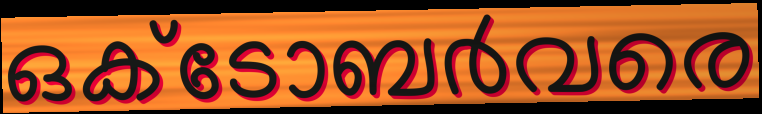
ഒക്ടോബർവരെ